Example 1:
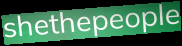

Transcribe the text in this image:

shethepeople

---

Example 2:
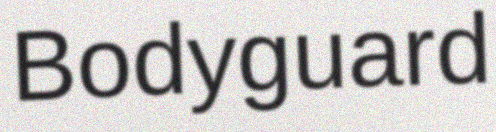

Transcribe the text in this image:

Bodyguard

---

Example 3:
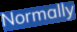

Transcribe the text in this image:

Normally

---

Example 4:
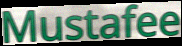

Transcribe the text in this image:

Mustafee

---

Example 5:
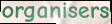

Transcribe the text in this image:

organisers